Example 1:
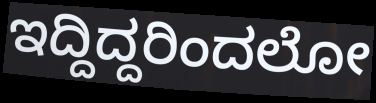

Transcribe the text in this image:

ಇದ್ದಿದ್ದರಿಂದಲೋ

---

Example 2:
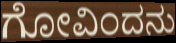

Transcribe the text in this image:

ಗೋವಿಂದನು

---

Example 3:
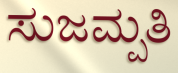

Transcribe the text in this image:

ಸುಜಮ್ಪತಿ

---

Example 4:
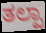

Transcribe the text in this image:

ತಲ್ಪಾ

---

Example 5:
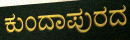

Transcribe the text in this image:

ಕುಂದಾಪುರದ